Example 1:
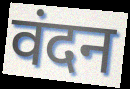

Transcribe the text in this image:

वंदन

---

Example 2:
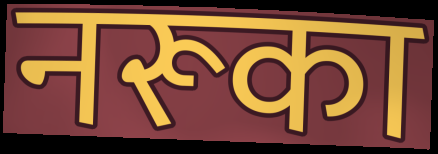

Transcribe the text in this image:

नरूका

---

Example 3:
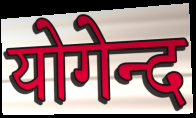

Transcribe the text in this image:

योगेन्द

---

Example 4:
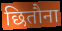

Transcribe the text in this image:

छितौना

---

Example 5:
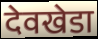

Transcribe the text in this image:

देवखेडा